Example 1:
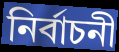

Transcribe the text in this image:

নির্বাচনী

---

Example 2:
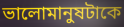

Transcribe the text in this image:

ভালোমানুষটাকে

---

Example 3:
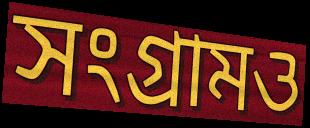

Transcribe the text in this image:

সংগ্রামও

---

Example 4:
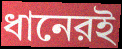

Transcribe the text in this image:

ধানেরই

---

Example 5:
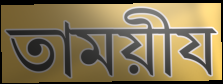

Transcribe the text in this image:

তাময়ীয